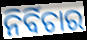
ନିର୍ବିଚାର